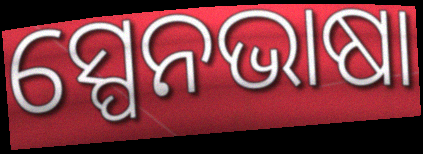
ସ୍ପେନଭାଷା